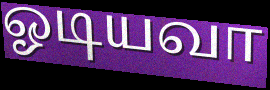
ஓடியவா